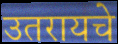
उतरायचे